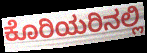
ಕೊರಿಯರಿನಲ್ಲಿ